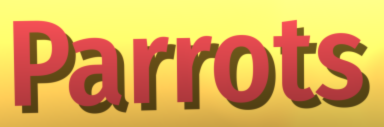
Parrots